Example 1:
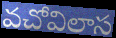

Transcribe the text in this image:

వచోవిలాస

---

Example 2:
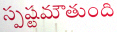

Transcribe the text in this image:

స్పష్టమౌతుంది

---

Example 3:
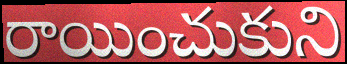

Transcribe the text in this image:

రాయించుకుని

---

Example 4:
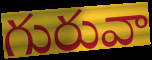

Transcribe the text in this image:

గురువా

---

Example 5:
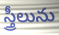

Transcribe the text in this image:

స్త్రీలును